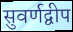
सुवर्णद्वीप